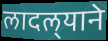
लादल्याने